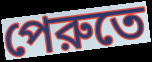
পেরুতে